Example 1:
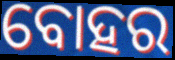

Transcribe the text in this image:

ବୋହର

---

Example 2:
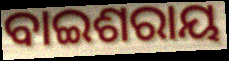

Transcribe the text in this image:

ବାଇଶରାୟ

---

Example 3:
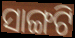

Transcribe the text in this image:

ସାଙ୍ଗଟି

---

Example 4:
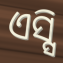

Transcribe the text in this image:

ଏସ୍ସି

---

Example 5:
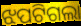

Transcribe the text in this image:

ଝପଟିଗଲା